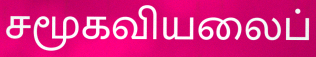
சமூகவியலைப்